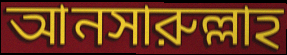
আনসারুল্লাহ